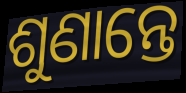
ଶୁଣାନ୍ତେ